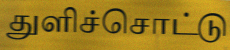
துளிச்சொட்டு